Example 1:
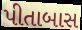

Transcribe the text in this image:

પીતાબાસ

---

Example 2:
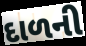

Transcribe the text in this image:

દાળની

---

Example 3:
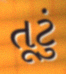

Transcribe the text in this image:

તૂટું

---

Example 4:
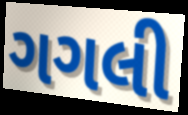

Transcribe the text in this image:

ગગલી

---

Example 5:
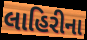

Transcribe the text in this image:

લાહિરીના